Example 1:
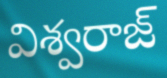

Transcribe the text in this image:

విశ్వరాజ్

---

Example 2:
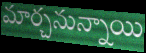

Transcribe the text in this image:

మార్చనున్నాయి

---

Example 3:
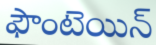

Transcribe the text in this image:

ఫౌంటెయిన్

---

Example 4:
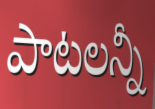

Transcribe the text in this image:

పాటలన్నీ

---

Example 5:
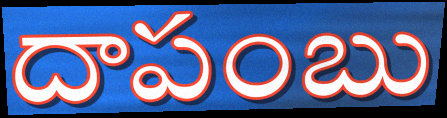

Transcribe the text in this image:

దాపంబు